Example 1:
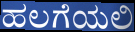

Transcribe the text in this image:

ಹಲಗೆಯಲಿ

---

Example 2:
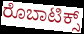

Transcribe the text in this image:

ರೊಬಾಟಿಕ್ಸ್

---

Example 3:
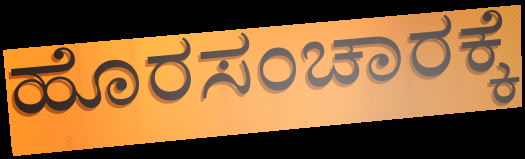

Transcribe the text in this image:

ಹೊರಸಂಚಾರಕ್ಕೆ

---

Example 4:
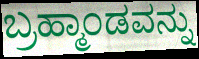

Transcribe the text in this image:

ಬ್ರಹ್ಮಾಂಡವನ್ನು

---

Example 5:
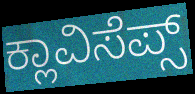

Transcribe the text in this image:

ಕ್ಲಾವಿಸೆಪ್ಸ್